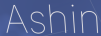
Ashin